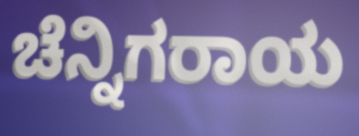
ಚೆನ್ನಿಗರಾಯ